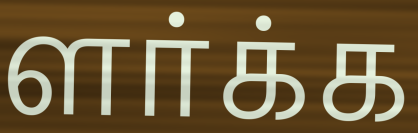
ளர்க்க